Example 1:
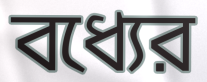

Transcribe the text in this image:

বধ্যের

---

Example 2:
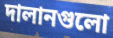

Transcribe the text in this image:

দালানগুলো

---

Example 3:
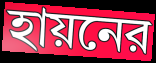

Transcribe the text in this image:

হায়নের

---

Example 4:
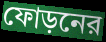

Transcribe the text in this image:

ফোড়নের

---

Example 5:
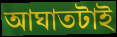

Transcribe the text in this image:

আঘাতটাই